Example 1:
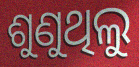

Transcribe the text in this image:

ଶୁଣୁଥିଲୁ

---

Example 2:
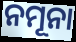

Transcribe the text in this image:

ନମୂନା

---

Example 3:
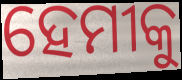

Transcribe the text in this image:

ହେମୀକୁ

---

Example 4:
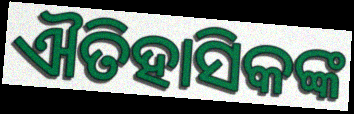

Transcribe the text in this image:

ଐତିହାସିକଙ୍କ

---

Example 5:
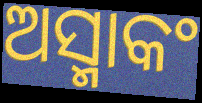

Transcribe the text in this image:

ଅସ୍ମାକଂ